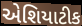
એશિયાટીક